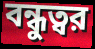
বন্ধুত্বর